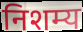
निशम्य